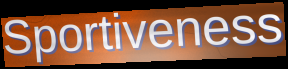
Sportiveness